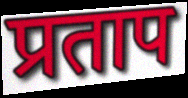
प्रताप